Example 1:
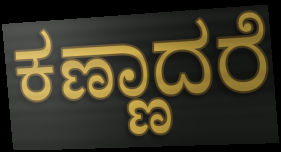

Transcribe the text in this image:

ಕಣ್ಣಾದರೆ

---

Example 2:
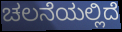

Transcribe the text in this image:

ಚಲನೆಯಲ್ಲಿದೆ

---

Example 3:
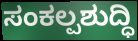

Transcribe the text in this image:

ಸಂಕಲ್ಪಶುದ್ಧಿ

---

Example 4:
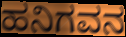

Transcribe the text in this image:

ಹನಿಗವನ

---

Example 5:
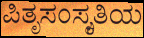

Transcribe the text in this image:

ಪಿತೃಸಂಸ್ಕೃತಿಯ